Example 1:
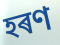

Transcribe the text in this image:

হৰণ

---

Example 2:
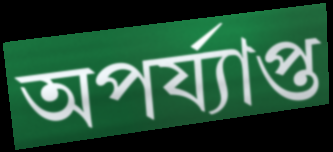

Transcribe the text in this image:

অপৰ্য্যাপ্ত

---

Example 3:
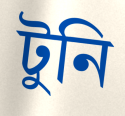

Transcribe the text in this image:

টুনি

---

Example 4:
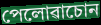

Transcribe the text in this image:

পেলোৱাচোন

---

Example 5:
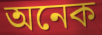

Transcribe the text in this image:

অনেক